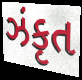
ઝંકૃત